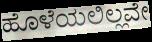
ಹೊಳೆಯಲಿಲ್ಲವೇ